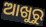
ଆଖୁରୁ